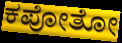
ಕಪೋತೋ